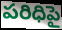
పరిధిపై